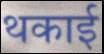
थकाई